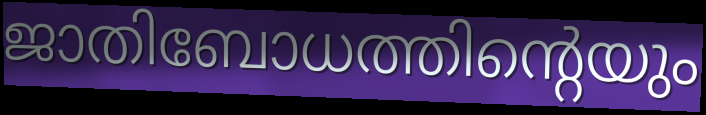
ജാതിബോധത്തിന്റെയും